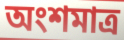
অংশমাত্র